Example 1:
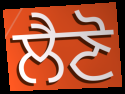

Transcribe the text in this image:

ਲੈਣੋ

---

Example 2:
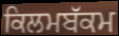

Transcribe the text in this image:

ਕਿਲਮਬੱਕਮ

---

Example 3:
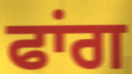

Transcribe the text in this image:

ਫਾਂਗ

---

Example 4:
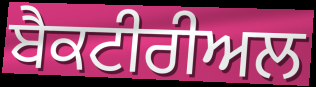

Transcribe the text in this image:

ਬੈਕਟੀਰੀਅਲ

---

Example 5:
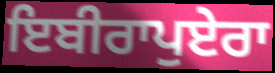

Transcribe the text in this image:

ਇਬੀਰਾਪੁਏਰਾ